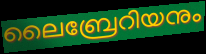
ലൈബ്രേറിയനും